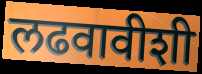
लढवावीशी